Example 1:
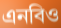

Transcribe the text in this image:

এনবিও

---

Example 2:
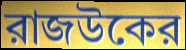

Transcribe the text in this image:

রাজউকের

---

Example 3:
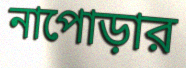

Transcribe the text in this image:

নাপোড়ার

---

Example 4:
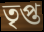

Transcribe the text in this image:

তৃপ্ত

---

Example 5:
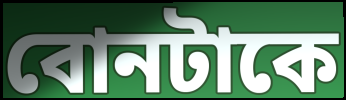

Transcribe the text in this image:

বোনটাকে